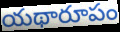
యథారూపం